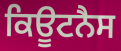
ਕਿਊਟਨੈਸ